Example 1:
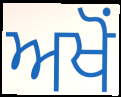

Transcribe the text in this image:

ਅਖੋਂ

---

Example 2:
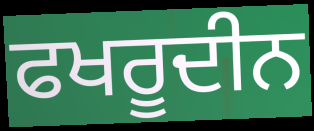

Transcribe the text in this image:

ਫਖਰੂਦੀਨ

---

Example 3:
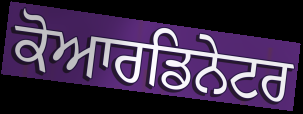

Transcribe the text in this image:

ਕੋਆਰਡਿਨੇਟਰ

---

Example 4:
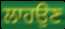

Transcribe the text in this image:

ਲਾਹਉਣ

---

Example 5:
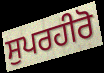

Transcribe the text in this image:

ਸੁਪਰਹੀਰੋ